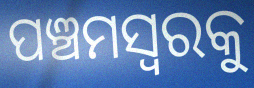
ପଞ୍ଚମସ୍ୱରକୁ